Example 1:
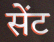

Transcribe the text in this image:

सेंट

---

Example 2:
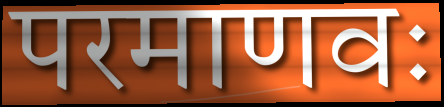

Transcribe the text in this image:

परमाणवः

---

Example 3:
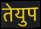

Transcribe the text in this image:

तेयुप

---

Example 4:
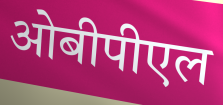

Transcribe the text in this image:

ओबीपीएल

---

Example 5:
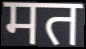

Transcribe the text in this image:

मत